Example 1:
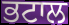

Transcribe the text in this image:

ਭਟਾਲ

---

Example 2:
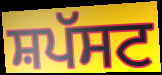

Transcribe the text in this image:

ਸ਼ਪੱਸਟ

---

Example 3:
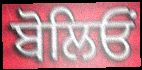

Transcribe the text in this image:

ਬੋਲਿਓਂ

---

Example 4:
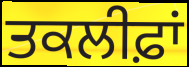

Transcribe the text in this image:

ਤਕਲੀਫ਼ਾਂ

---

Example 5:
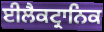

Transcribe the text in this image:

ਈਲੈਕਟ੍ਰਾਨਿਕ